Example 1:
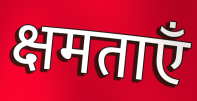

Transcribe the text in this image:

क्षमताएँ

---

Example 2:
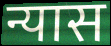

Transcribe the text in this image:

न्यास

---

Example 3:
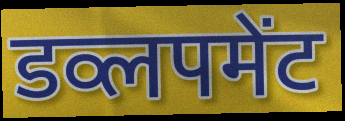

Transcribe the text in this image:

डव्लपमेंट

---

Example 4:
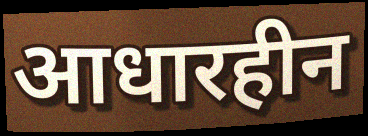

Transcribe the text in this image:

आधारहीन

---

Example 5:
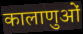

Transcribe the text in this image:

कालाणुओं